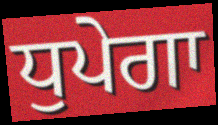
ਧੁਪੇਗਾ